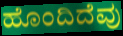
ಹೊಂದಿದೆವು